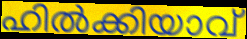
ഹിൽക്കിയാവ്